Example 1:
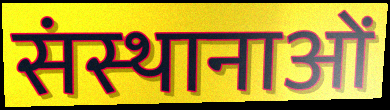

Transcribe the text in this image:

संस्थानाओं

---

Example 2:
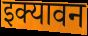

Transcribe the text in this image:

इक्यावन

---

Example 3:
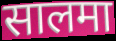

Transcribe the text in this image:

सालमा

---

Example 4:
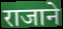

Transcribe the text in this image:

राजाने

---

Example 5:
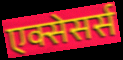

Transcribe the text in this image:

एक्सेसर्स